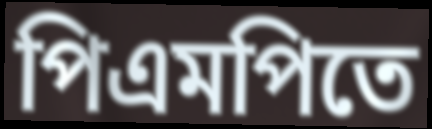
পিএমপিতে